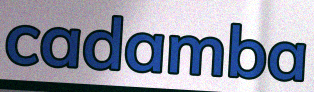
cadamba